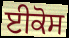
ਈਕੋਸ